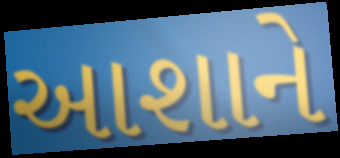
આશાને